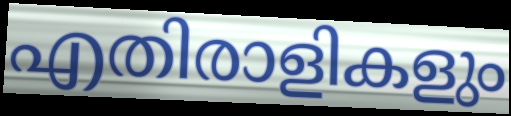
എതിരാളികളും